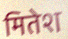
मितेश